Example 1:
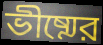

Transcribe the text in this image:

ভীষ্মের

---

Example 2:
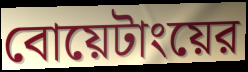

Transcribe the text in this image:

বোয়েটাংয়ের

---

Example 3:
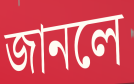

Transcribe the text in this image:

জানলে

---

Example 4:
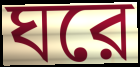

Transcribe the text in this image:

ঘরে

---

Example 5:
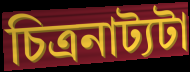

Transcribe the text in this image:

চিত্রনাট্যটা